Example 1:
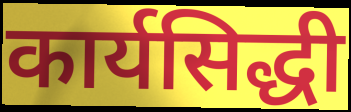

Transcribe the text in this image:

कार्यसिद्धी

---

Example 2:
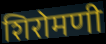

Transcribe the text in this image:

शिरोमणी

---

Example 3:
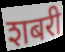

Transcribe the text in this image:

शबरी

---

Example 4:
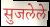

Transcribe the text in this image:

सुजलेले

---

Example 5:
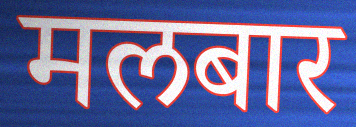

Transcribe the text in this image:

मलबार